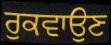
ਰੁਕਵਾਉਣ